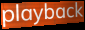
playback